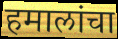
हमालांचा